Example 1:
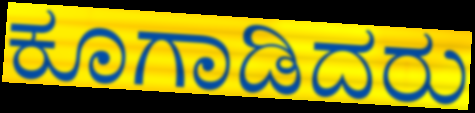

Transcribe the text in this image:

ಕೂಗಾಡಿದರು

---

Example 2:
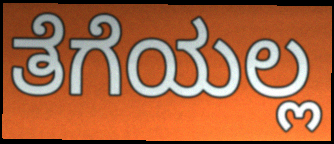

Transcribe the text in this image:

ತೆಗೆಯಲ್ಲ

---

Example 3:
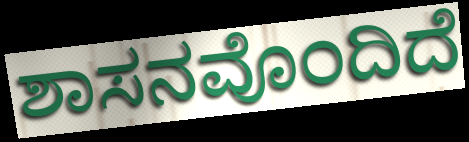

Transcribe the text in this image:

ಶಾಸನವೊಂದಿದೆ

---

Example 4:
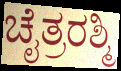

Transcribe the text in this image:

ಚೈತ್ರರಶ್ಮಿ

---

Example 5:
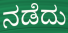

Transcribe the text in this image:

ನಡೆದು